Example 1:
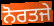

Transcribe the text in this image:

ਨੋਰਤਜੇ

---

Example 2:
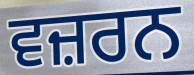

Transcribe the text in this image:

ਵਜ਼ਰਨ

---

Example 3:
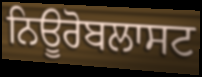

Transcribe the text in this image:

ਨਿਊਰੋਬਲਾਸਟ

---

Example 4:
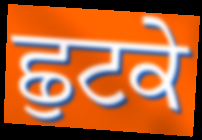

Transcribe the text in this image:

ਛੁਟਕੇ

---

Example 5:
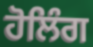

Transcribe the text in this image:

ਹੋਲਿੰਗ